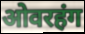
ओवरहंग